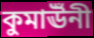
কুমাঊঁনী